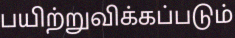
பயிற்றுவிக்கப்படும்